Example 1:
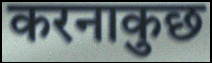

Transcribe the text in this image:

करनाकुछ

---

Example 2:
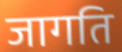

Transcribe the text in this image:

जागति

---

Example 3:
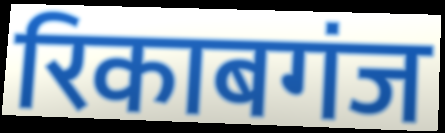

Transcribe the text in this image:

रिकाबगंज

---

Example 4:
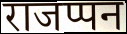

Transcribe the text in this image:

राजप्पन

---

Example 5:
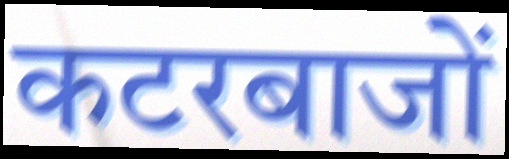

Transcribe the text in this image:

कटरबाजों